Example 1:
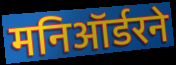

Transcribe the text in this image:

मनिऑर्डरने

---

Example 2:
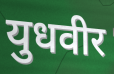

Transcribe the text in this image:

युधवीर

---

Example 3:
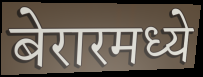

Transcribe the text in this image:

बेरारमध्ये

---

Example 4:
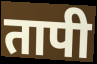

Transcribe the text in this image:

तापी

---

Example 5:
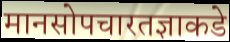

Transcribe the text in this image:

मानसोपचारतज्ञाकडे